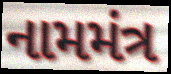
નામમંત્ર